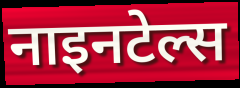
नाइनटेल्स